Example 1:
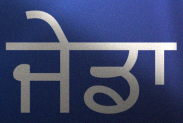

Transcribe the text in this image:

ਜੇਡਾ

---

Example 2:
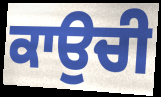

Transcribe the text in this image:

ਕਾਉਚੀ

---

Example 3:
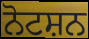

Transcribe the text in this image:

ਨੋਟਸ਼ਨ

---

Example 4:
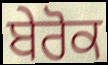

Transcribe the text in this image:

ਬੇਰੋਕ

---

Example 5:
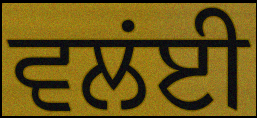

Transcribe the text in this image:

ਵਲਂਈ